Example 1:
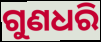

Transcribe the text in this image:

ଗୁଣଧରି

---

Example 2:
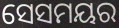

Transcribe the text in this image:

ସେସମୟର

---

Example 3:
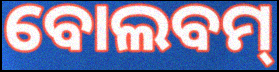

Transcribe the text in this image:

ବୋଲବମ୍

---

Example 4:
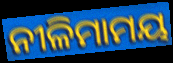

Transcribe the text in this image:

ନୀଳିମାମୟ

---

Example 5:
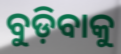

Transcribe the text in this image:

ବୁଡ଼ିବାକୁ